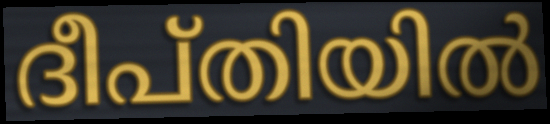
ദീപ്തിയിൽ